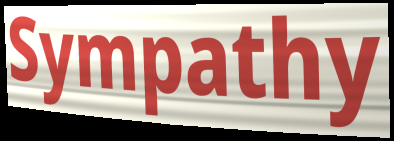
Sympathy